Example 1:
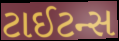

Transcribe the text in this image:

ટાઈટન્સ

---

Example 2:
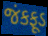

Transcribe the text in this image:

જંકફૂડ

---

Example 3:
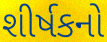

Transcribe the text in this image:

શીર્ષકનો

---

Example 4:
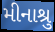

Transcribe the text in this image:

મીનાશ્રુ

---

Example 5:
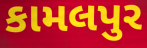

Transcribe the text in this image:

કામલપુર